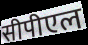
सीपीएल